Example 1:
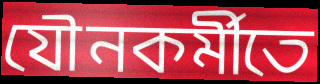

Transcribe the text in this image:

যৌনকর্মীতে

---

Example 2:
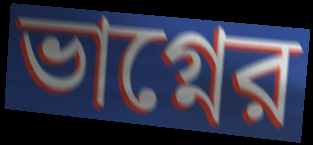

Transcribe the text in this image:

ভাগ্নের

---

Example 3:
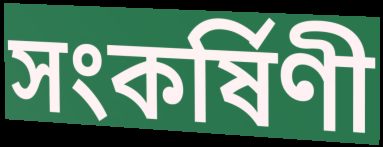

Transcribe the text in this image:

সংকর্ষিণী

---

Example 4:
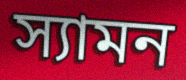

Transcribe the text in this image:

স্যামন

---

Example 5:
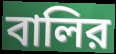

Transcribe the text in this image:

বালির